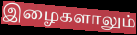
இழைகளாலும்